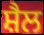
ਸ਼ੈਲ